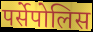
पर्सेपोलिस